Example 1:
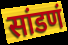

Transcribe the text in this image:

सांडणं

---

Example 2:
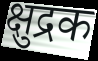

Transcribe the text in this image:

क्षुद्रक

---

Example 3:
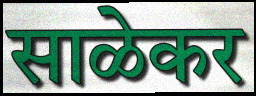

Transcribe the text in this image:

साळेकर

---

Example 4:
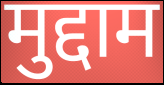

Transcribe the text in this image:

मुद्दाम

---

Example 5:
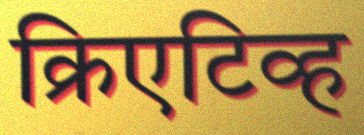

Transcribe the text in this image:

क्रिएटिव्ह